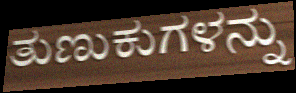
ತುಣುಕುಗಳನ್ನು